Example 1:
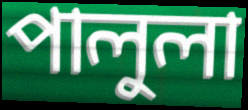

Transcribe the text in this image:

পালুলা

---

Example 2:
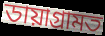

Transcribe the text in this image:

ডায়াগ্ৰামত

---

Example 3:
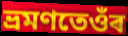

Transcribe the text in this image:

ভ্ৰমণতেওঁৰ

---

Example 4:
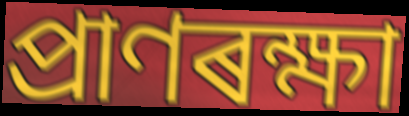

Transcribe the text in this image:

প্ৰাণৰক্ষা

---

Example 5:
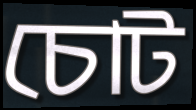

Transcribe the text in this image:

চোট